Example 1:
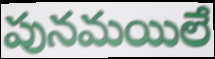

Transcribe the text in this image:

పునమయిలే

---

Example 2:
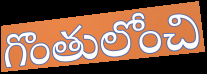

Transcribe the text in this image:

గొంతులోంచి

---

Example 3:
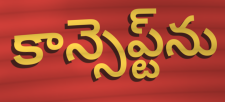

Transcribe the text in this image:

కాన్సెప్ట్‌ను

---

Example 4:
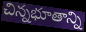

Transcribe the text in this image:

చిన్నభూతాన్ని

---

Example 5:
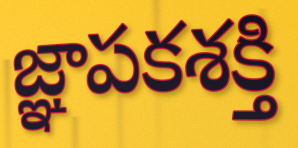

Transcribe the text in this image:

జ్ఞాపకశక్తి